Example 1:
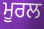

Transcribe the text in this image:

ਮੂਰਲ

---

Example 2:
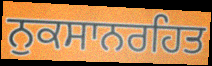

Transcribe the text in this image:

ਨੁਕਸਾਨਰਹਿਤ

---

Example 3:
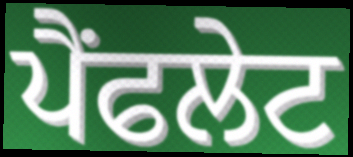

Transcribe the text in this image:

ਪੈਂਫਲੇਟ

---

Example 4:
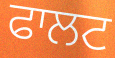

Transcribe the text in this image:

ਫਾਲਟ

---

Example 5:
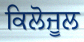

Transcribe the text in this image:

ਕਿਲੋਜੂਲ